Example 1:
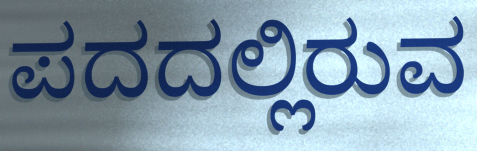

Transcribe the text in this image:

ಪದದಲ್ಲಿರುವ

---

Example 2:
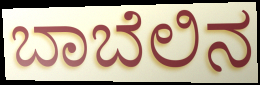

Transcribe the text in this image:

ಬಾಬೆಲಿನ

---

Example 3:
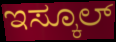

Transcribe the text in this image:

ಇಸ್ಕೂಲ್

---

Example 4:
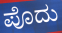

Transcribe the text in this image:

ಪೊದು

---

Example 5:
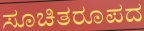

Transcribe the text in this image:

ಸೂಚಿತರೂಪದ